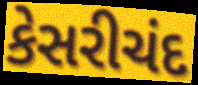
કેસરીચંદ